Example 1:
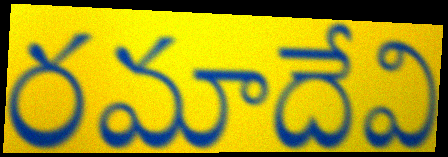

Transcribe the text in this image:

రమాదేవి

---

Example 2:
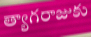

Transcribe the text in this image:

త్యాగరాజుకు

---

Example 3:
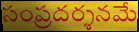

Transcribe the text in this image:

సంప్రదర్శనమే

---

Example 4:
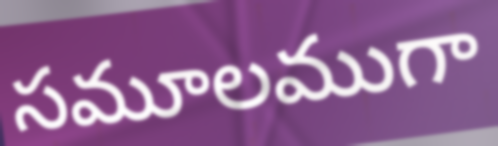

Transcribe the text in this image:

సమూలముగా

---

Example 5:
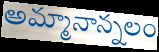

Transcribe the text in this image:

అమ్మానాన్నలం